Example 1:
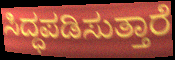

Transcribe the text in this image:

ಸಿದ್ಧಪಡಿಸುತ್ತಾರೆ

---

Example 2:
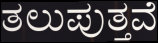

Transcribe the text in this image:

ತಲುಪುತ್ತವೆ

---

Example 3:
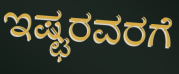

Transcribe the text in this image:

ಇಷ್ಟರವರಗೆ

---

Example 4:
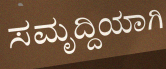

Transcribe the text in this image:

ಸಮೃದ್ದಿಯಾಗಿ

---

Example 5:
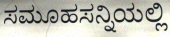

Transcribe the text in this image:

ಸಮೂಹಸನ್ನಿಯಲ್ಲಿ